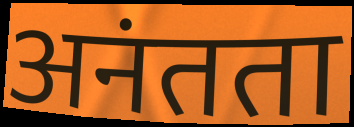
अनंतता